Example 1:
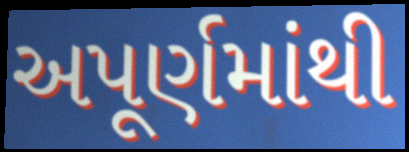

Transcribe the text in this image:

અપૂર્ણમાંથી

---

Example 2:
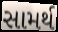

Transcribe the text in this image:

સામર્થ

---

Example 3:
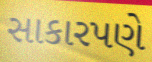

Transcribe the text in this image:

સાકારપણે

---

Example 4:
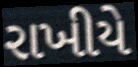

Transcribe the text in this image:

રાખીયે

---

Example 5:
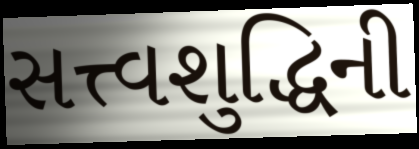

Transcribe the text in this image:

સત્ત્વશુદ્ધિની